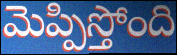
మెప్పిస్తోంది